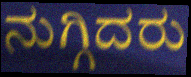
ನುಗ್ಗಿದರು